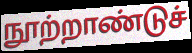
நூற்றாண்டுச்